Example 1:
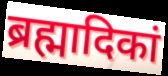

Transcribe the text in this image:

ब्रह्मादिकां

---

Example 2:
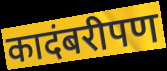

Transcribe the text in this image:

कादंबरीपण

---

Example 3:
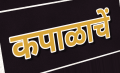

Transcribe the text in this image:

कपाळाचें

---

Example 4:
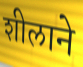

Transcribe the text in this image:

शीलाने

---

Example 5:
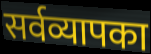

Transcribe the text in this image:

सर्वव्यापका